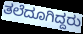
ತಲೆದೂಗಿದ್ದರು